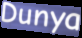
Dunya